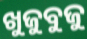
ଖୁଜୁବୁଜୁ